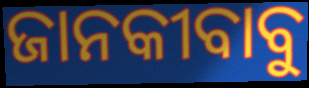
ଜାନକୀବାବୁ